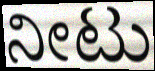
ನೀಟು